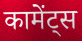
कामेंट्स